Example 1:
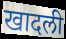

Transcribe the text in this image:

खादली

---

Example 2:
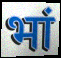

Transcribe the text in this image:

भां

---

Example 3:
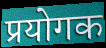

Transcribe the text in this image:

प्रयोगक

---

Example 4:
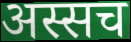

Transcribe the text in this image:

अस्सच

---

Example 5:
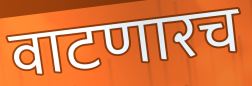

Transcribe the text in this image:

वाटणारच